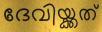
ദേവിയ്ക്കത്